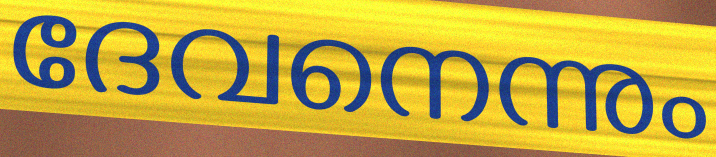
ദേവനെന്നും